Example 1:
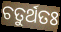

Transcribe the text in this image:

ଚତୁର୍ଥତଃ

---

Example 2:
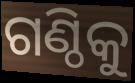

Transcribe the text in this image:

ଗଣ୍ଠିକୁ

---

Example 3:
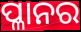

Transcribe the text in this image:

ପ୍ଳାନର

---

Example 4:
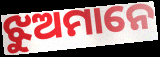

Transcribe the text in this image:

ଝୁଅମାନେ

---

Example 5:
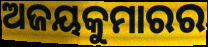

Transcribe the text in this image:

ଅଜୟକୁମାରର